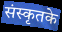
संस्कृतके